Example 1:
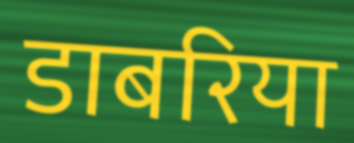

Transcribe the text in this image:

डाबरिया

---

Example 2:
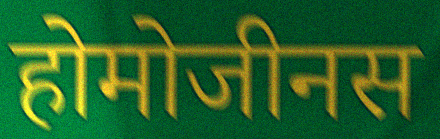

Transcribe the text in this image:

होमोजीनस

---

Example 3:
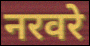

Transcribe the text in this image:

नरवरे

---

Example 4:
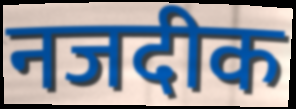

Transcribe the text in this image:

नजदीक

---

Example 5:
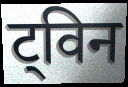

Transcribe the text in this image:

ट्विन